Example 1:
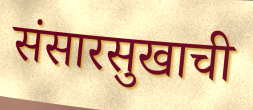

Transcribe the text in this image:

संसारसुखाची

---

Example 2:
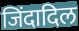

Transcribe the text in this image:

जिंदादिल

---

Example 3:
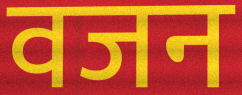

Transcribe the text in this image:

वजन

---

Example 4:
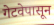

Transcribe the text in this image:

गेटवेपासून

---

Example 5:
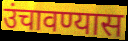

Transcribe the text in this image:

उंचावण्यास